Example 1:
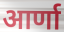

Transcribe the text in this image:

आर्णा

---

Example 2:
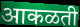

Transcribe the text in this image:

आकळती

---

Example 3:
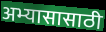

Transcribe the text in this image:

अभ्यासासाठी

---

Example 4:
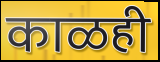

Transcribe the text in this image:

काळही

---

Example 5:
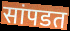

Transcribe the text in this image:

सांपडत